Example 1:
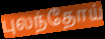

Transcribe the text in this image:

புலந்தோய்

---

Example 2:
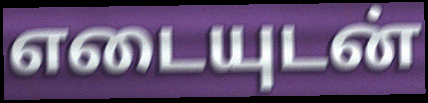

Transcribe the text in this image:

எடையுடன்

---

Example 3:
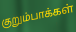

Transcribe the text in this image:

குறும்பாக்கள்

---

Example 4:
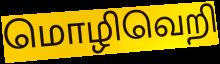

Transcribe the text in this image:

மொழிவெறி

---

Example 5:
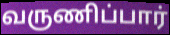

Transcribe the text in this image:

வருணிப்பார்